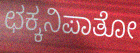
ಛಕ್ಕನಿಪಾತೋ